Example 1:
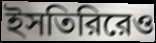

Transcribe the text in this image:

ইসতিরিরেও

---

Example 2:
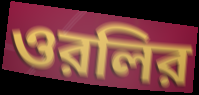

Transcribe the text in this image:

ওরলির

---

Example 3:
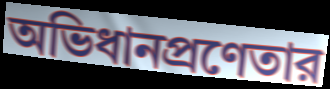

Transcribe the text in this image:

অভিধানপ্রণেতার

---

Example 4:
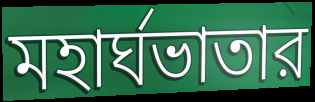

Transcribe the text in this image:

মহার্ঘভাতার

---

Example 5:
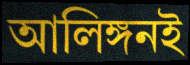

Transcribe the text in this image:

আলিঙ্গনই